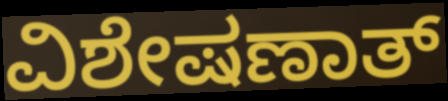
ವಿಶೇಷಣಾತ್